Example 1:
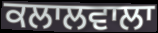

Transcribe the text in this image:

ਕਲਾਲਵਾਲਾ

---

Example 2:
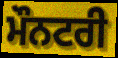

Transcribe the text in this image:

ਮੌਨਟਰੀ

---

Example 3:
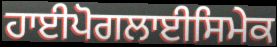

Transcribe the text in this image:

ਹਾਈਪੋਗਲਾਈਸਿਮੇਕ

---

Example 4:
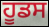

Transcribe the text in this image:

ਹੂਡਸ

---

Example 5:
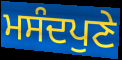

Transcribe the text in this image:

ਮਸੰਦਪੁਣੇ